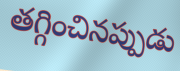
తగ్గించినప్పుడు